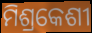
ମିଶ୍ରକେଶୀ